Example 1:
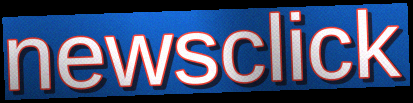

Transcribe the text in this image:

newsclick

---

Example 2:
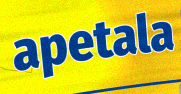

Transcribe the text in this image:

apetala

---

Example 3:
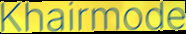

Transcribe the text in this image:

Khairmode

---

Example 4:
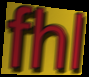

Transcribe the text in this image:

fhl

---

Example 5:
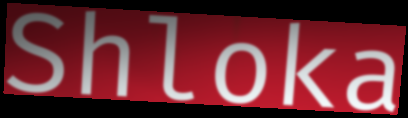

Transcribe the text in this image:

Shloka